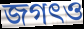
জগৎও